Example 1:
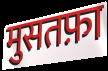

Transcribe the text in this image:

मुसतफ़ा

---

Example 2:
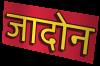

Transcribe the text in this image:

जादोन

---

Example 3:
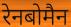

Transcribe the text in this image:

रेनबोमैन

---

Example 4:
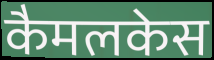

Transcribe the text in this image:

कैमलकेस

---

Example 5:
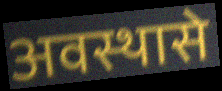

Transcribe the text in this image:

अवस्थासे